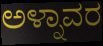
ಅಳ್ನಾವರ